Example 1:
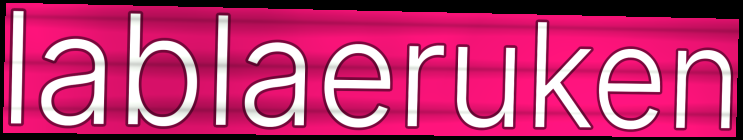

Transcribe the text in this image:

lablaeruken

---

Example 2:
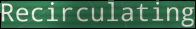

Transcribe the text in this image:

Recirculating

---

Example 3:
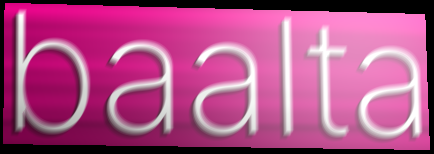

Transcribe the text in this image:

baalta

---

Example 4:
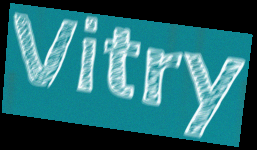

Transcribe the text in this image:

Vitry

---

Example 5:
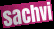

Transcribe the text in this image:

sachvi